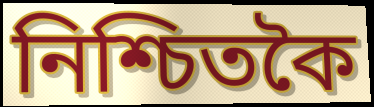
নিশ্চিতকৈ